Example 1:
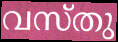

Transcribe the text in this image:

വസ്തു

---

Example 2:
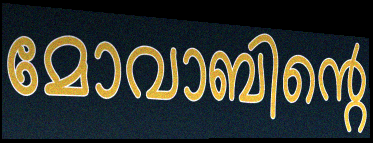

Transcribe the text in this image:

മോവാബിന്റെ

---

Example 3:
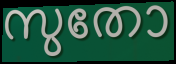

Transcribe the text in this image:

സുതോ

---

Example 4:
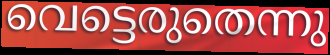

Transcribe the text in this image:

വെട്ടെരുതെന്നു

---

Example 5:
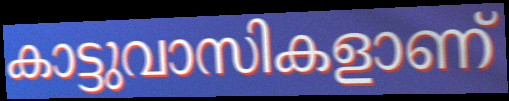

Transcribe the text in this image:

കാട്ടുവാസികളാണ്